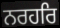
ਨਰਹਰਿ